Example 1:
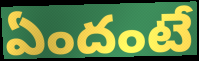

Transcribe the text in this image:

ఏందంటే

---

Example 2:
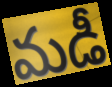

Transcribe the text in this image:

మడీ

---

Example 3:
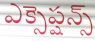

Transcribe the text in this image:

ఎక్సెప్షన్స్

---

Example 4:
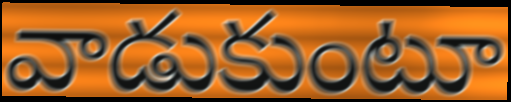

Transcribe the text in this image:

వాడుకుంటూ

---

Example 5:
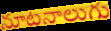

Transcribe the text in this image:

నూటనాలుగు